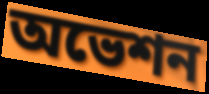
অভেশন